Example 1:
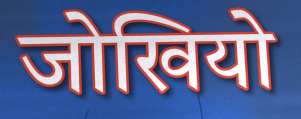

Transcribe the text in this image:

जोखियो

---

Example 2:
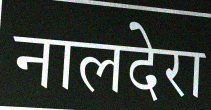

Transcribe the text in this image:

नालदेरा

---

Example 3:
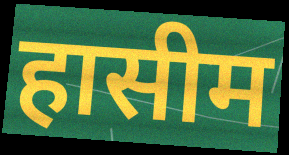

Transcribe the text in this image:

हासीम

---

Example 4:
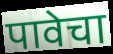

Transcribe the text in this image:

पावेचा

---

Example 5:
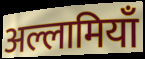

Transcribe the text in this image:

अल्लामियाँ